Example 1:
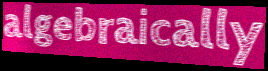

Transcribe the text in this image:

algebraically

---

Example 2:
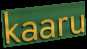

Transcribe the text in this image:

kaaru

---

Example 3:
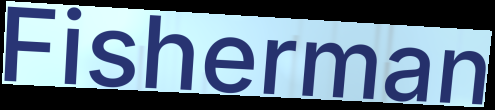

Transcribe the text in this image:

Fisherman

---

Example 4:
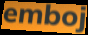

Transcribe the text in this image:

emboj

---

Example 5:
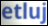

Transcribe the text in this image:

etluj